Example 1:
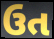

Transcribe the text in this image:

ઉત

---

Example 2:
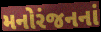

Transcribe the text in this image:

મનોરંજનનાં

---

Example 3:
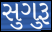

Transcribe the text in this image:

સુગુરૂ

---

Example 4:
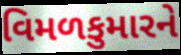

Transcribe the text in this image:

વિમળકુમારને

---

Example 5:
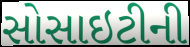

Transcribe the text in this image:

સોસાઇટીની